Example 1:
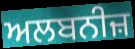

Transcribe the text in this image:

ਅਲਬਨੀਜ਼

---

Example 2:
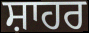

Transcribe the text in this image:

ਸ਼ਾਹਰ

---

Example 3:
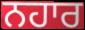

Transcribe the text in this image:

ਨਹਾਰ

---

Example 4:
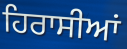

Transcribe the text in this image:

ਹਿਰਾਸੀਆਂ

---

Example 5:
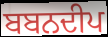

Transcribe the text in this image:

ਬਬਨਦੀਪ